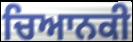
ਚਿਆਨਕੀ